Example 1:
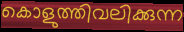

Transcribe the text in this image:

കൊളുത്തിവലിക്കുന്ന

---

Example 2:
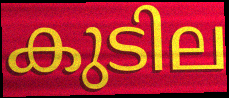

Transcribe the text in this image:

കുടില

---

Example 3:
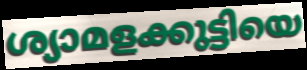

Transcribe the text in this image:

ശ്യാമളക്കുട്ടിയെ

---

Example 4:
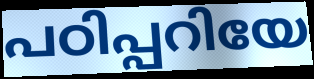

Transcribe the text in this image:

പഠിപ്പറിയേ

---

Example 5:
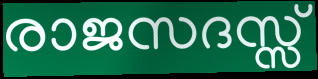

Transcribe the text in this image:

രാജസദസ്സ്